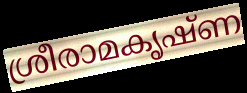
ശ്രീരാമകൃഷ്ണ